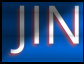
JIN